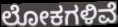
ಲೋಕಗಳಿವೆ